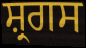
ਸ਼੍ਰਗਸ